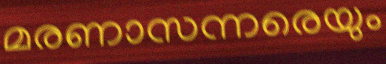
മരണാസന്നരെയും